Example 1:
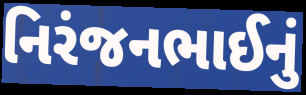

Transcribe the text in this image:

નિરંજનભાઈનું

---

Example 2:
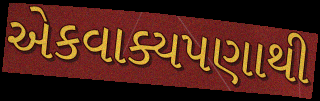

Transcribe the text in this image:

એકવાક્યપણાથી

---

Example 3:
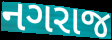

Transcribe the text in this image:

નગરાજ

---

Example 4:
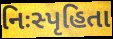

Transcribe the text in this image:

નિઃસ્પૃહિતા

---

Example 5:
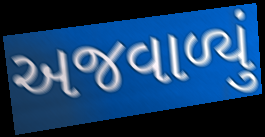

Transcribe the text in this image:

અજવાળ્યું